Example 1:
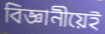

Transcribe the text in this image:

বিজ্ঞানীয়েই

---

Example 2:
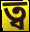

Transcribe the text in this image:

ত্ব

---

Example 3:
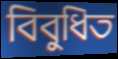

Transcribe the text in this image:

বিবুধিত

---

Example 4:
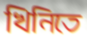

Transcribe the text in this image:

খিনিতে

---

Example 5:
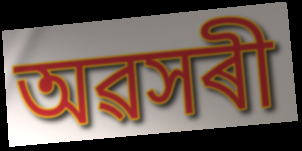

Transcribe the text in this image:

অৱসৰী